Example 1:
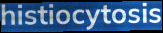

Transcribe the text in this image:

histiocytosis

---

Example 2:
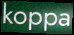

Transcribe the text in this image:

koppa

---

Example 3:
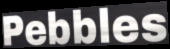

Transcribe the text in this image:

Pebbles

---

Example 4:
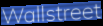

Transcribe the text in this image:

Wallstreet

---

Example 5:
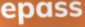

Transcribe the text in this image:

epass